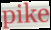
pike